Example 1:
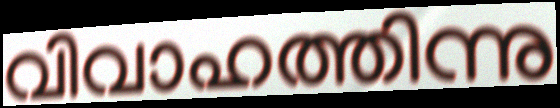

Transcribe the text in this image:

വിവാഹത്തിന്നു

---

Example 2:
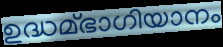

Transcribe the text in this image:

ഉദ്ധമ്ഭാഗിയാനം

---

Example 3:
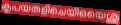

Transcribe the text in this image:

കൃപയരുളിചെയിഒയെശു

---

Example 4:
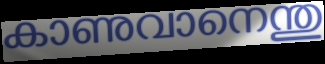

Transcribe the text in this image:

കാണുവാനെന്തു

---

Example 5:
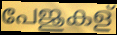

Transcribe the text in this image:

പേജുകള്